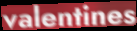
valentines